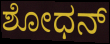
ಶೋಧನ್